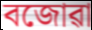
বজোৱা